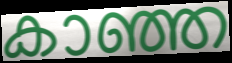
കാഞ്ഞ